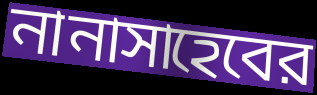
নানাসাহেবের